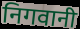
निगवानी